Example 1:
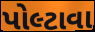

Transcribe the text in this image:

પોલ્ટાવા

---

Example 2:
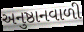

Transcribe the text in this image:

અનુષ્ઠાનવાળી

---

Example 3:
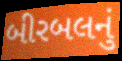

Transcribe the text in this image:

બીરબલનું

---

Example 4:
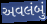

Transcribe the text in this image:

અવલંબું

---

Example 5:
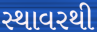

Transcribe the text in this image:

સ્થાવરથી